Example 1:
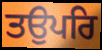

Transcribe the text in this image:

ਤਉਪਰਿ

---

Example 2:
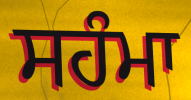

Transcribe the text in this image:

ਸਹੰਮਾ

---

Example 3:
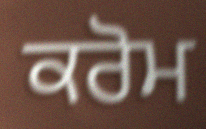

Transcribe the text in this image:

ਕਰੋਮ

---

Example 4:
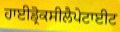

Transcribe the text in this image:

ਹਾਈਡ੍ਰੋਕਸੀਲੈਪੇਟਾਈਟ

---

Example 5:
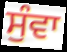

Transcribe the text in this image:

ਸੁੰਵਾ